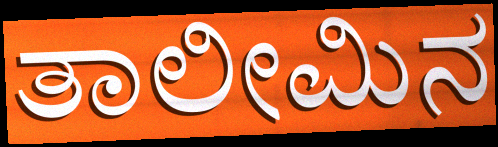
ತಾಲೀಮಿನ